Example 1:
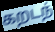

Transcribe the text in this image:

கறடந்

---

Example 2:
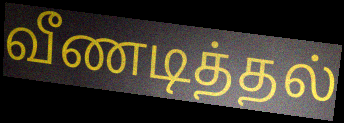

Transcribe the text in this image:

வீணடித்தல்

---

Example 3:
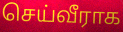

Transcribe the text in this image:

செய்வீராக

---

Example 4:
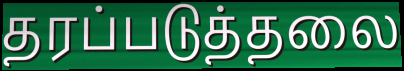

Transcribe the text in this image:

தரப்படுத்தலை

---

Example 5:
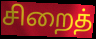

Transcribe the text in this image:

சிறைத்